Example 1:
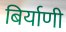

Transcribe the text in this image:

बिर्याणी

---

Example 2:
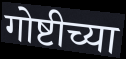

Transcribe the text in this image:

गोष्टीच्या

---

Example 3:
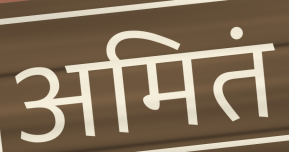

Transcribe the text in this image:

अमितं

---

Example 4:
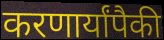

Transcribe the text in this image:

करणार्यांपैकी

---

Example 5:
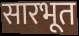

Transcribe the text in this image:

सारभूत